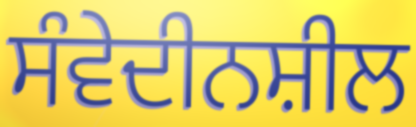
ਸੰਵੇਦੀਨਸ਼ੀਲ